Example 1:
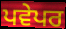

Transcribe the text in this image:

ਪਵੇਪਰ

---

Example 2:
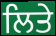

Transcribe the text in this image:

ਲਿਤੇ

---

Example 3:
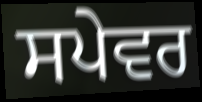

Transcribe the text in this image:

ਸਪੇਵਰ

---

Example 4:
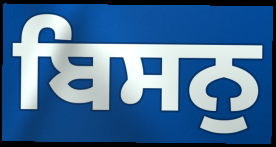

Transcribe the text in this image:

ਬਿਸਨੁ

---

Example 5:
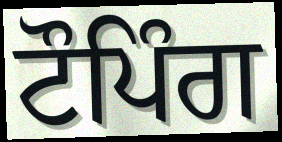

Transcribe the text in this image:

ਟੌਪਿੰਗ